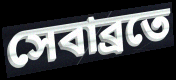
সেবাব্রতে